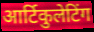
आर्टिकुलेटिंग